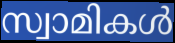
സ്വാമികൾ